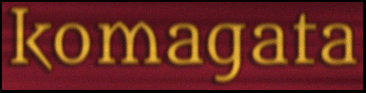
komagata